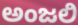
ಅಂಜಲಿ